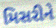
મિસરીને